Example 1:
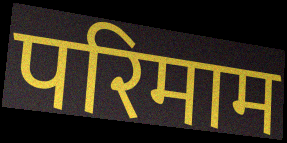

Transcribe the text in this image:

परिमाम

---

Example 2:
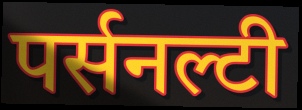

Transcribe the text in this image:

पर्सनल्टी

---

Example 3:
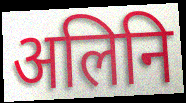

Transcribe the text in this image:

अलिनि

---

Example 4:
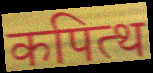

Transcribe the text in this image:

कपित्थ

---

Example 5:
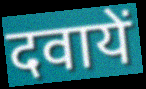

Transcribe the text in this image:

दवायें